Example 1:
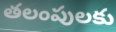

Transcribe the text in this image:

తలంపులకు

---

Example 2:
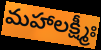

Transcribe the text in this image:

మహాలక్ష్మీః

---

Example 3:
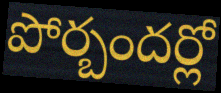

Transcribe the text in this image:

పోర్బందర్లో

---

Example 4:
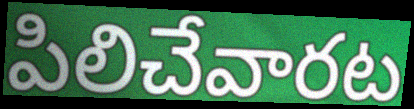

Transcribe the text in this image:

పిలిచేవారట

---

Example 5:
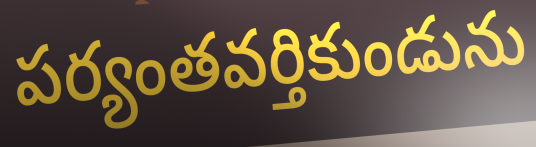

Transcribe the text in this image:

పర్యంతవర్తికుండును